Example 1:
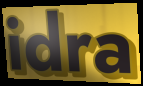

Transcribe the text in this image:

idra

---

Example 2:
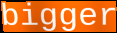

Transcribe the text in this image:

bigger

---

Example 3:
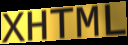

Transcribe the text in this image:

XHTML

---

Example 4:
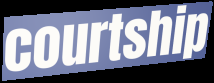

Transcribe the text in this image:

courtship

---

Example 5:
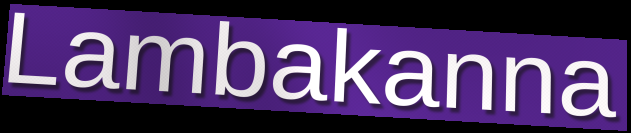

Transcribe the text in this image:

Lambakanna